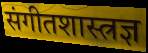
संगीतशास्त्रज्ञ